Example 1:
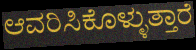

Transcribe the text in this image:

ಆವರಿಸಿಕೊಳ್ಳುತ್ತಾರೆ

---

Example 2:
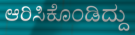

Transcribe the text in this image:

ಆರಿಸಿಕೊಂಡಿದ್ದು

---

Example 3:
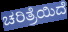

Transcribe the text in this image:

ಚರಿತ್ರೆಯಿದೆ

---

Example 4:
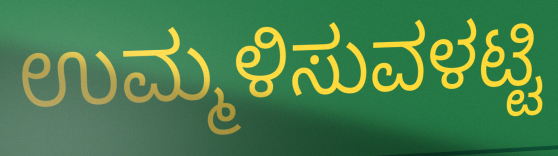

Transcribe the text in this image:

ಉಮ್ಮಳಿಸುವಳಟ್ಟಿ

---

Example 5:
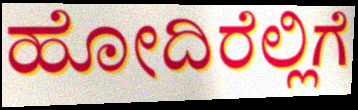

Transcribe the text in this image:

ಹೋದಿರೆಲ್ಲಿಗೆ